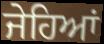
ਜੇਹਿਆਂ